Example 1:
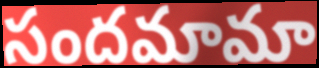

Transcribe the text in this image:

సందమామా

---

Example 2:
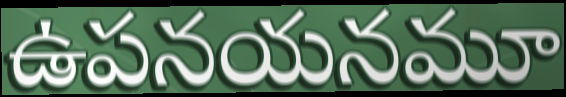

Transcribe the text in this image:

ఉపనయనమూ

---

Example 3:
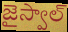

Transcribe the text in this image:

జైస్వాల్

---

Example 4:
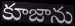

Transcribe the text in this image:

కూజాను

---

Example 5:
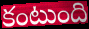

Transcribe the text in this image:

కంటుంది